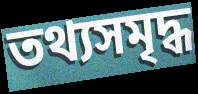
তথ্যসমৃদ্ধ